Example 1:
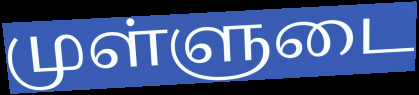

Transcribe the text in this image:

முள்ளுடை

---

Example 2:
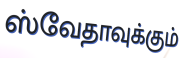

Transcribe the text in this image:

ஸ்வேதாவுக்கும்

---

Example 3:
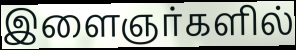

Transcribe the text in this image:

இளைஞர்களில்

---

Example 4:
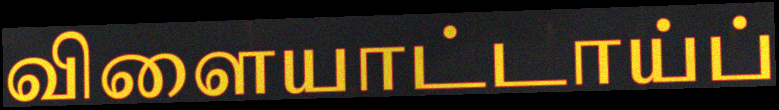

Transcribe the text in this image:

விளையாட்டாய்ப்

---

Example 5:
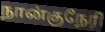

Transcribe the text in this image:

நான்குநேரி